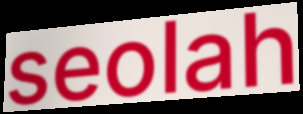
seolah